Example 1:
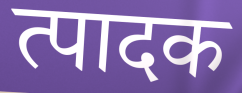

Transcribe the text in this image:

त्पादक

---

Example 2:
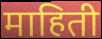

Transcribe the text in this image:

माहिती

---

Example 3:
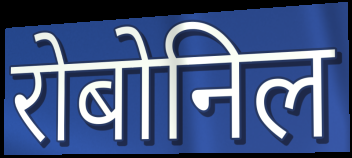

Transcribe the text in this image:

रोबोनिल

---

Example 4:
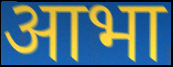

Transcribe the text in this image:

आभा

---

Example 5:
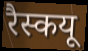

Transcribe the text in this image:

रैस्कयू